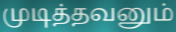
முடித்தவனும்